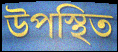
উপস্থিত